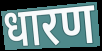
धारण